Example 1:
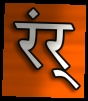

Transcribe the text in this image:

रंर्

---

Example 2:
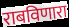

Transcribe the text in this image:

राबविणारा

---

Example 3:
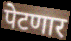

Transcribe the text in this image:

पेटणार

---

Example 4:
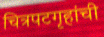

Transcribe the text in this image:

चित्रपटगृहांची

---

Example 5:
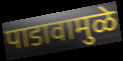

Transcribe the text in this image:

पाडावामुळे